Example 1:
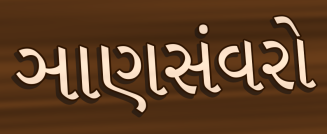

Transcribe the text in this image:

ઞાણસંવરો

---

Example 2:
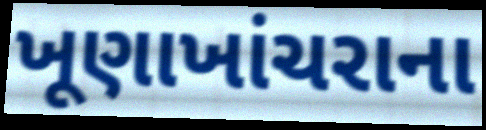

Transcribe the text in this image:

ખૂણાખાંચરાના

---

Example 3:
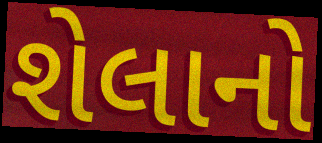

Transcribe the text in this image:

શેલાનો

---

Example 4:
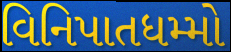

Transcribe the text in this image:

વિનિપાતધમ્મો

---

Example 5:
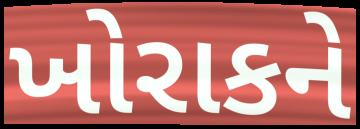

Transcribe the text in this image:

ખોરાકને